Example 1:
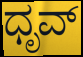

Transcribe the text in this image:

ಧೃವ್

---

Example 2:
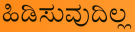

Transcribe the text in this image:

ಹಿಡಿಸುವುದಿಲ್ಲ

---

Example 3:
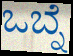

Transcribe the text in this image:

ಒಬ್ನೆ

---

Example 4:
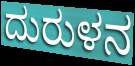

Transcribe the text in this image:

ದುರುಳನ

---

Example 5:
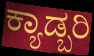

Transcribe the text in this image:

ಕ್ಯಾಡ್ಬರಿ